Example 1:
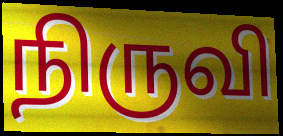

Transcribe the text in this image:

நிருவி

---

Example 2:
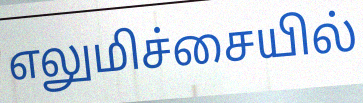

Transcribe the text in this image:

எலுமிச்சையில்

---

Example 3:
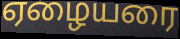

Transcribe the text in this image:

ஏழையரை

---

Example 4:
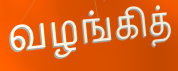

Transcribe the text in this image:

வழங்கித்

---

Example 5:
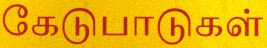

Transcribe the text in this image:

கேடுபாடுகள்